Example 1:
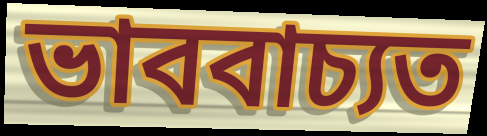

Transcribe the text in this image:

ভাববাচ্যত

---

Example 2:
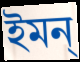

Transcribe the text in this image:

ইমন্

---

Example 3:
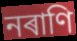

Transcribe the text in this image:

নৰাণি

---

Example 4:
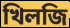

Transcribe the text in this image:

খিলজি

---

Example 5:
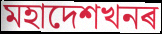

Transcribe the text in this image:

মহাদেশখনৰ